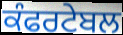
ਕੰਫਰਟੇਬਲ